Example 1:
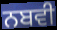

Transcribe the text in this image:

ਨਬਵੀ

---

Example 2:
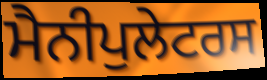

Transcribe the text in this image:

ਮੈਨੀਪੁਲੇਟਰਸ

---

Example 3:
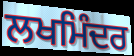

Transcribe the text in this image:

ਲਖਮਿੰਦਰ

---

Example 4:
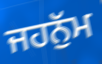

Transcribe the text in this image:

ਜਹਨੁੱਮ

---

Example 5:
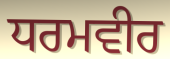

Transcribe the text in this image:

ਧਰਮਵੀਰ